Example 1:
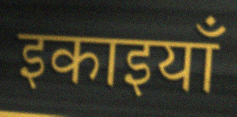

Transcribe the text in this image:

इकाइयाँ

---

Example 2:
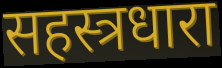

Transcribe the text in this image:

सहस्त्रधारा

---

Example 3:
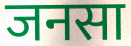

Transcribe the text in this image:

जनसा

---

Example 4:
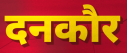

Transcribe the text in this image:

दनकौर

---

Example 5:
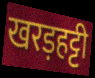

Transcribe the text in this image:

खरड़हट्टी